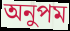
অনুপম